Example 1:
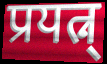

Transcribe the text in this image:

प्रयत्न्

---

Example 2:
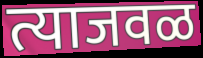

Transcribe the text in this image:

त्याजवळ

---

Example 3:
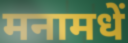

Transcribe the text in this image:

मनामधें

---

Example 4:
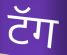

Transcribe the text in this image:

टॅग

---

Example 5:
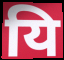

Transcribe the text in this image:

यि